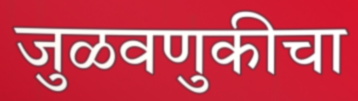
जुळवणुकीचा